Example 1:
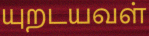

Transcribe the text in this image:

யுறடயவள்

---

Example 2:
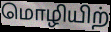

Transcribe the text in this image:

மொழியிற்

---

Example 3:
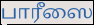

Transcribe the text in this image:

பாரீஸை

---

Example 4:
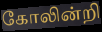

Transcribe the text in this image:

கோலின்றி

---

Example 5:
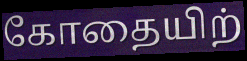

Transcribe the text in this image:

கோதையிற்